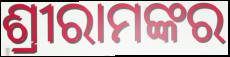
ଶ୍ରୀରାମଙ୍କର